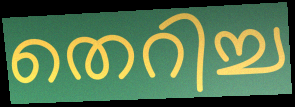
തെറിച്ച